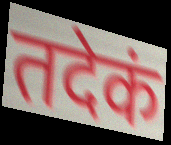
तदेकं